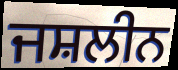
ਜਸ਼ਲੀਨ